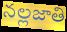
నల్లజాతి